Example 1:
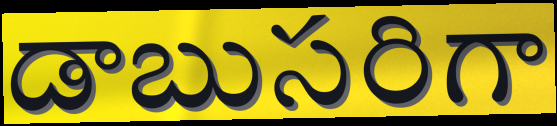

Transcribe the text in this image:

డాబుసరిగా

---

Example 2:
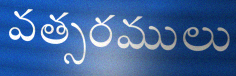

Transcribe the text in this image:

వత్సరములు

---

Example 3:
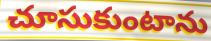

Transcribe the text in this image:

చూసుకుంటాను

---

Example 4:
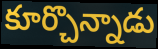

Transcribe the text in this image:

కూర్చొన్నాడు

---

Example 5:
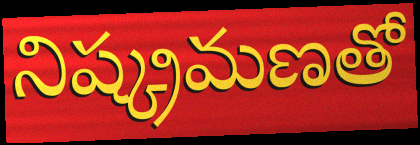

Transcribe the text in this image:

నిష్క్రమణతో